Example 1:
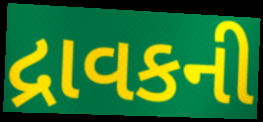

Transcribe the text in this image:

દ્રાવકની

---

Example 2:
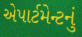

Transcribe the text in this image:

એપાર્ટમેન્ટનું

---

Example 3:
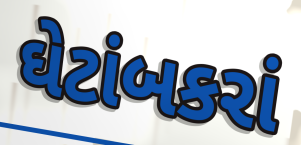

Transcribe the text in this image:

ઘેટાંબકરાં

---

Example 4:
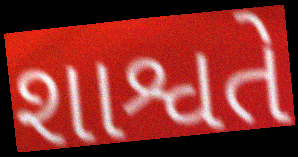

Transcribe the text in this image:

શાશ્વતે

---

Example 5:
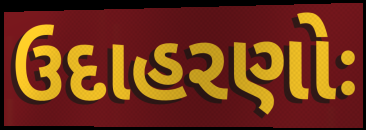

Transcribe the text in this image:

ઉદાહરણોઃ